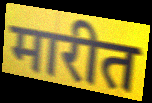
मारीत